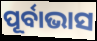
ପୂର୍ବାଭାସ